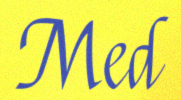
Med